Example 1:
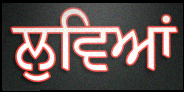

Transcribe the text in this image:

ਲੁਵਿਆਂ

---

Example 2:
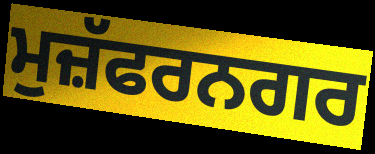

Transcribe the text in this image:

ਮੁਜ਼ੱਫਰਨਗਰ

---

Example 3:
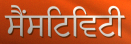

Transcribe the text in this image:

ਸੈਂਸਟਿਵਿਟੀ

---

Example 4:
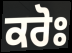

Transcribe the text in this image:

ਕਰੋਃ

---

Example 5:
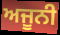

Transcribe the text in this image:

ਅਜੂਨੀ